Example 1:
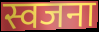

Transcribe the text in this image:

स्वजना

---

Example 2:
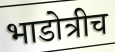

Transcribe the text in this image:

भाडोत्रीच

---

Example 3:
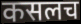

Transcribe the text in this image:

कसलच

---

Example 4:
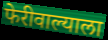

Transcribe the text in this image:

फेरीवाल्याला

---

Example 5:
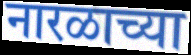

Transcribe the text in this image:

नारळाच्या